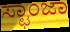
ಸ್ಟಾಂಜಾ